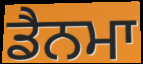
ਡੈਨਮਾ